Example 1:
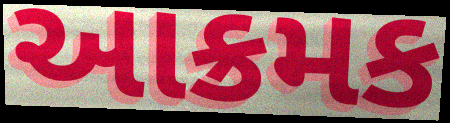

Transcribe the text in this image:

આક્રમક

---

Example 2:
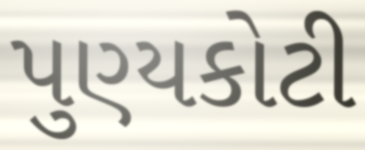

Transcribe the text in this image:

પુણ્યકોટી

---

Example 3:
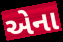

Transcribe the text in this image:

એના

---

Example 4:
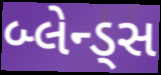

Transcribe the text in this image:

બ્લેન્ડ્સ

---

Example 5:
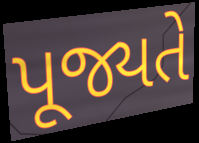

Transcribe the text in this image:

પૂજ્યતે